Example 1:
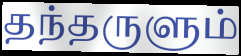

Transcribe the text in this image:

தந்தருளும்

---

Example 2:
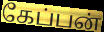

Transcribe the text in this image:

கேப்பன்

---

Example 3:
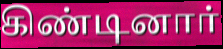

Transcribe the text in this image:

கிண்டினார்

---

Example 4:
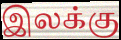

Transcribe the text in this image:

இலக்கு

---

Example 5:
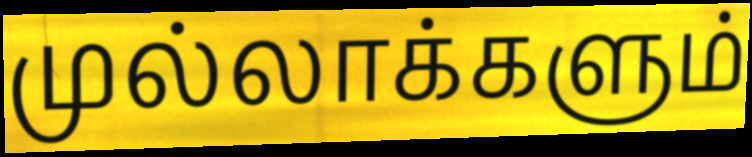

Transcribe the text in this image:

முல்லாக்களும்